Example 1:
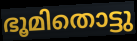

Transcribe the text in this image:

ഭൂമിതൊട്ടു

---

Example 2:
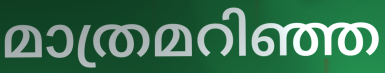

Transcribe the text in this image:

മാത്രമറിഞ്ഞ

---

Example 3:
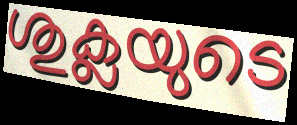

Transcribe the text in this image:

ശുക്ലയുടെ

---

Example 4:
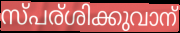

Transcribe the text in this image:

സ്പര്ശിക്കുവാന്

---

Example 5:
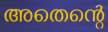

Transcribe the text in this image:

അതെന്റെ